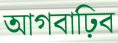
আগবাঢ়িব